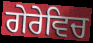
ਗੇਰੇਵਿਚ